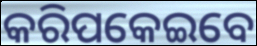
କରିପକେଇବେ